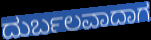
ದುರ್ಬಲವಾದಾಗ